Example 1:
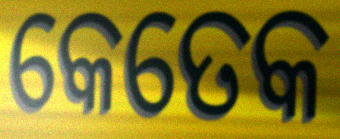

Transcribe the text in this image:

କେତେକ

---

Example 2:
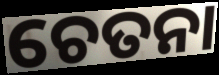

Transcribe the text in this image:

ଚେତନା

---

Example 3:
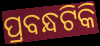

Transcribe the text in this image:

ପ୍ରବନ୍ଧଟିକି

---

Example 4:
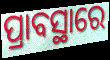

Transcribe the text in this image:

ପ୍ରାବସ୍ଥାରେ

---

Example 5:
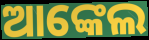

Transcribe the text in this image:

ଆଙ୍କେଲ